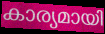
കാര്യമായി